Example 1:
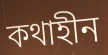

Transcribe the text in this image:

কথাহীন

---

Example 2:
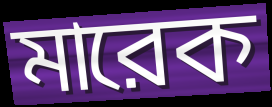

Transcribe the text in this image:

মারেক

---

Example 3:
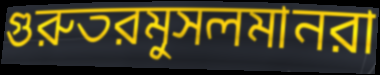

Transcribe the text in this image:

গুরুতরমুসলমানরা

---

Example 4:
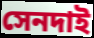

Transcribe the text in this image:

সেনদাই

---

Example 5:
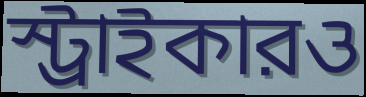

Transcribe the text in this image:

স্ট্রাইকারও